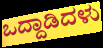
ಒದ್ದಾಡಿದಳು